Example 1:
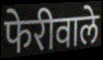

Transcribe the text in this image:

फेरीवाले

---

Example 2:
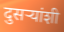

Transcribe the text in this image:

दुसर्‍यांशी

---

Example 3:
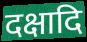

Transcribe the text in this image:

दक्षादि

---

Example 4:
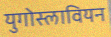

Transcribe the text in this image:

युगोस्लावियन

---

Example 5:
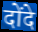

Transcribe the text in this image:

दोंदे